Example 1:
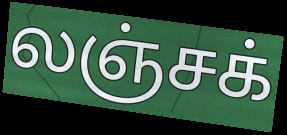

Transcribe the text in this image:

லஞ்சக்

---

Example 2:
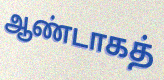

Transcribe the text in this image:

ஆண்டாகத்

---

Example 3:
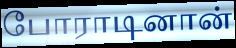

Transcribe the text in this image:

போராடினான்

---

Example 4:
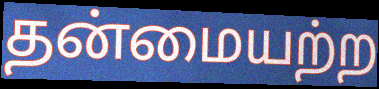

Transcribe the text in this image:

தன்மையற்ற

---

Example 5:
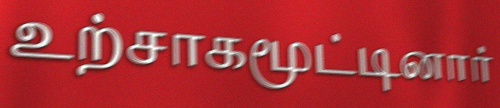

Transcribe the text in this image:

உற்சாகமூட்டினார்